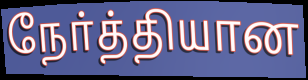
நேர்த்தியான